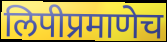
लिपीप्रमाणेच